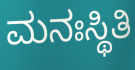
ಮನಃಸ್ಥಿತಿ